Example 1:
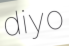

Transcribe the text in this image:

diyo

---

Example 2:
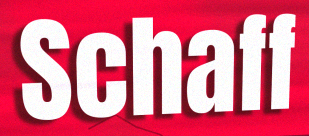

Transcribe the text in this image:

Schaff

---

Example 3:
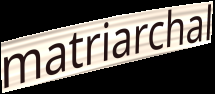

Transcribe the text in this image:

matriarchal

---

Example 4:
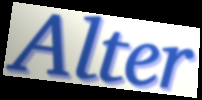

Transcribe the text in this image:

Alter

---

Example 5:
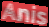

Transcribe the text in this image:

Anis